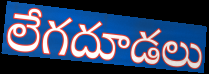
లేగదూడలు